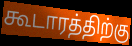
கூடாரத்திற்கு